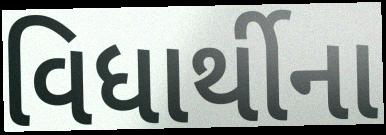
વિધાર્થીના